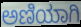
ಅಣಿಯಾಗಿ